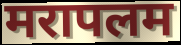
मरापलम